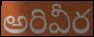
అరివీర